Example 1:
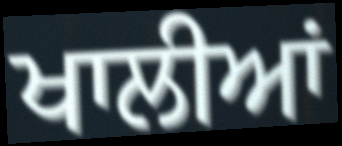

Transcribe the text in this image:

ਖਾਲੀਆਂ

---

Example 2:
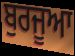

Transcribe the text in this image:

ਬੁਰਜੂਆ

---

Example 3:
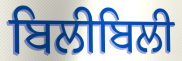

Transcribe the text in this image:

ਬਿਲੀਬਿਲੀ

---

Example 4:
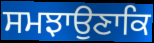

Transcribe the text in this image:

ਸਮਝਾਉਣਾਕਿ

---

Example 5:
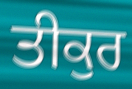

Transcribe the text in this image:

ਤੀਕੁਰ